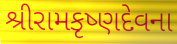
શ્રીરામકૃષ્ણદેવના